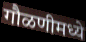
गौळणीमध्ये